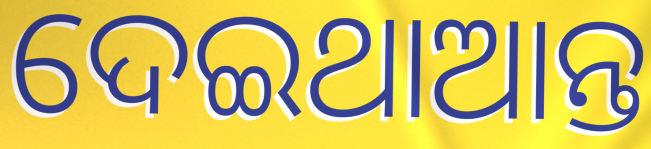
ଦେଇଥାଆନ୍ତ